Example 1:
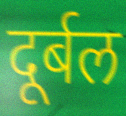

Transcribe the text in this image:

दूर्बल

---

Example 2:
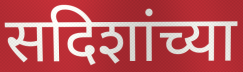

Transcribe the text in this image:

सदिशांच्या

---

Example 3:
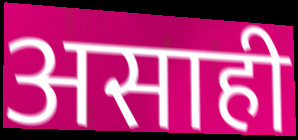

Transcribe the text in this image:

असाही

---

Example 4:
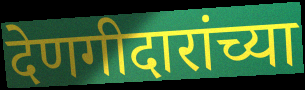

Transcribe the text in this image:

देणगीदारांच्या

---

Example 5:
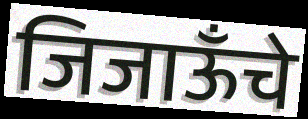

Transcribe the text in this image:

जिजाऊँचे